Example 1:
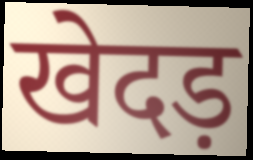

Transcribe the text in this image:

खेदड़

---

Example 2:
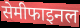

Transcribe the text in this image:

सेमीफाइनल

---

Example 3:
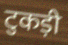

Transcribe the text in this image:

टुकड़ी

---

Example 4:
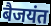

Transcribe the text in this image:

बैजयंत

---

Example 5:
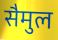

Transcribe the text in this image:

सैमुल